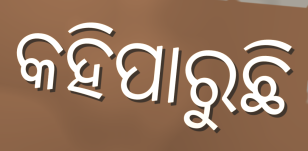
କହିପାରୁଛି